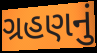
ગ્રહણનું